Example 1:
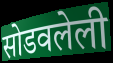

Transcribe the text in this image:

सोडवलेली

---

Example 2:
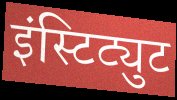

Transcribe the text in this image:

इंस्टिट्युट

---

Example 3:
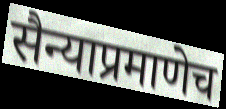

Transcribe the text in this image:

सैन्याप्रमाणेच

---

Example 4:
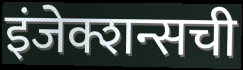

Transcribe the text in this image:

इंजेक्शन्सची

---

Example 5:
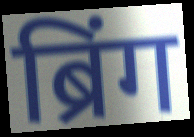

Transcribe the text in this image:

ब्रिंग